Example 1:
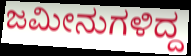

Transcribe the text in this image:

ಜಮೀನುಗಳಿದ್ದ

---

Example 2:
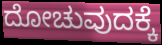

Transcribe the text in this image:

ದೋಚುವುದಕ್ಕೆ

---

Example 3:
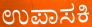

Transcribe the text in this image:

ಉಪಾಸಕಿ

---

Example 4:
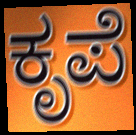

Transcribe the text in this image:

ಕೃಪೆ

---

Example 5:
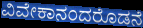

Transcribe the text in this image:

ವಿವೇಕಾನಂದರೊಡನೆ